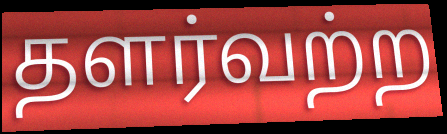
தளர்வற்ற